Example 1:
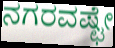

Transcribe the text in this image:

ನಗರವಷ್ಟೇ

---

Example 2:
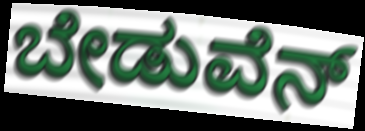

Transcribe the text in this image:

ಬೇಡುವೆನ್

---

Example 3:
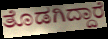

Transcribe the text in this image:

ತೊಡಗಿದ್ದಾರೆ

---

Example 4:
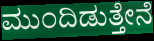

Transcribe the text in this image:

ಮುಂದಿಡುತ್ತೇನೆ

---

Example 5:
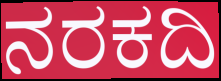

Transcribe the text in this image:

ನರಕದಿ